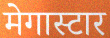
मेगास्टार